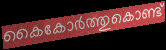
കൈകോർത്തുകൊണ്ട്